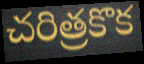
చరిత్రకొక